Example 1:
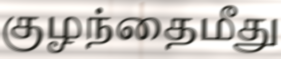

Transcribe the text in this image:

குழந்தைமீது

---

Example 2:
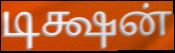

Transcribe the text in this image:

டிக்ஷன்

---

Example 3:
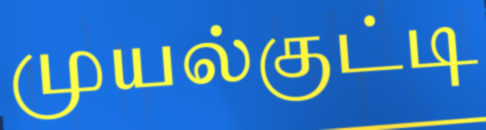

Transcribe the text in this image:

முயல்குட்டி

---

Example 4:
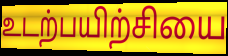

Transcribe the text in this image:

உடற்பயிற்சியை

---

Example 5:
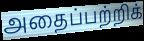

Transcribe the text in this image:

அதைப்பற்றிக்